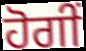
ਹੋਗੀਂ